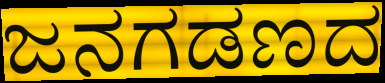
ಜನಗಡಣದ